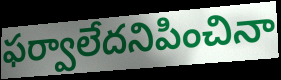
ఫర్వాలేదనిపించినా